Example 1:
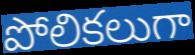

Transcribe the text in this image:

పోలికలుగా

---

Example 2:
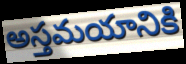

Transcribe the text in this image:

అస్తమయానికి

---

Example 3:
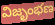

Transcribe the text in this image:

విజృంభణ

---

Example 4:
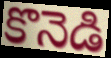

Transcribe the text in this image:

కొనెడి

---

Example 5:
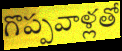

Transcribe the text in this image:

గొప్పవాళ్లతో